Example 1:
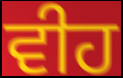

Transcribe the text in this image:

ਵੀਹ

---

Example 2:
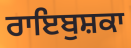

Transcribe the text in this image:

ਰਾਇਬੁਸ਼ਕਾ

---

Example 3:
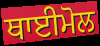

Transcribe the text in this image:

ਥਾਈਮੋਲ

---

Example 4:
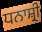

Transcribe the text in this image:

ਧਨਾਸ਼੍ਰੀ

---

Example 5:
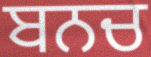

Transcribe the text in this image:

ਬਨਚ